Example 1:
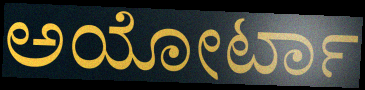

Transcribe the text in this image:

ಅಯೋರ್ಟಾ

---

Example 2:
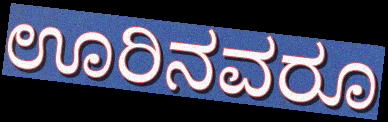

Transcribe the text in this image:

ಊರಿನವರೂ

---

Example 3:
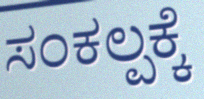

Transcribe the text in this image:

ಸಂಕಲ್ಪಕ್ಕೆ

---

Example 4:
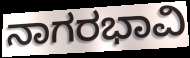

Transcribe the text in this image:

ನಾಗರಭಾವಿ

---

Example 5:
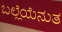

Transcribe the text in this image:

ಬಲ್ಲೆಯೆನುತ